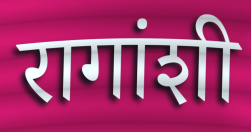
रागांशी